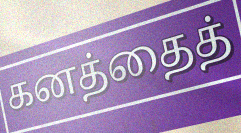
கனத்தைத்